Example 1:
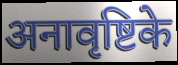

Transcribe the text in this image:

अनावृष्टिके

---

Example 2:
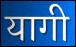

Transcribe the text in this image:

यागी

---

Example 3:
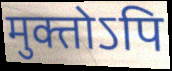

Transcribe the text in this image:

मुक्तोऽपि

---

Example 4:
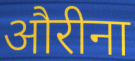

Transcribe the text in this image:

औरीना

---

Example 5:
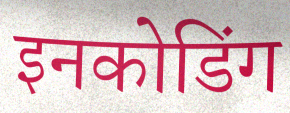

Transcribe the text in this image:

इनकोडिंग